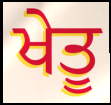
ਖੇਤੂ